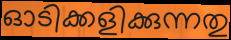
ഓടിക്കളിക്കുന്നതു